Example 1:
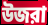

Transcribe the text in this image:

উজরা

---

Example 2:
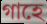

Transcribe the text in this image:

গাহে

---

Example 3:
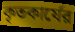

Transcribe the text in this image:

কৃতকার্যের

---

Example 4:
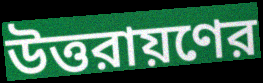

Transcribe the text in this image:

উত্তরায়ণের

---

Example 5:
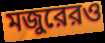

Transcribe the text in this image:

মজুরেরও